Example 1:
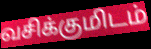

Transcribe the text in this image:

வசிக்குமிடம்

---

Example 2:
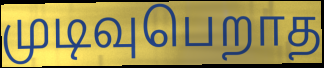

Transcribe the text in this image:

முடிவுபெறாத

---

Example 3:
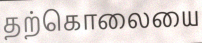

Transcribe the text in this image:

தற்கொலையை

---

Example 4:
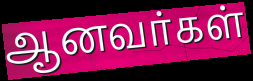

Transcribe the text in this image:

ஆனவர்கள்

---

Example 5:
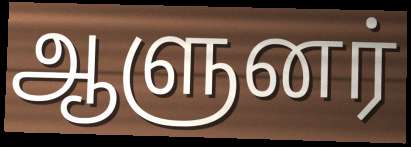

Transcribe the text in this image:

ஆளுனர்